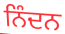
ਨਿੰਦਨ